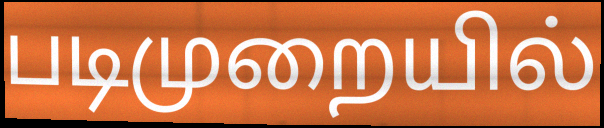
படிமுறையில்